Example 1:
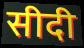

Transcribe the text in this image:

सीदी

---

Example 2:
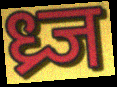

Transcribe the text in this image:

ध्र्ज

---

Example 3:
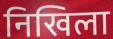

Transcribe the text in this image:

निखिला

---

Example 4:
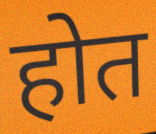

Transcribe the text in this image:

होत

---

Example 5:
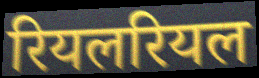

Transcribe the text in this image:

रियलरियल